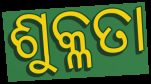
ଶୁକ୍ଳତା